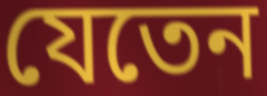
যেতেন